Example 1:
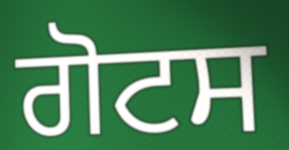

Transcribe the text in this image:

ਗੋਟਸ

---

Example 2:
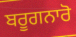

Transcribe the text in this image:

ਬਰੂਗਨਾਰੋ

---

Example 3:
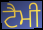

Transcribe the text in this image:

ਟੈਮੀ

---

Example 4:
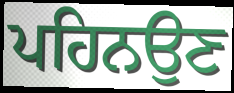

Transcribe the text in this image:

ਪਹਿਨਉਣ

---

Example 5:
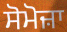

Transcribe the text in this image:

ਸੋਮੋਜ਼ਾ